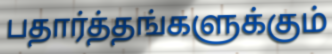
பதார்த்தங்களுக்கும்